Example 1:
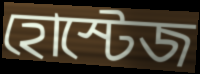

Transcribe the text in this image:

হোস্টেজ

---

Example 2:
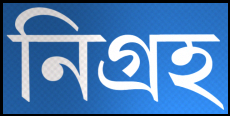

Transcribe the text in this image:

নিগ্রহ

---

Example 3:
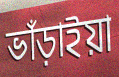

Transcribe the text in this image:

ভাঁড়াইয়া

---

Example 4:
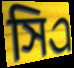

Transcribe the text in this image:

সিএ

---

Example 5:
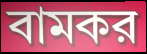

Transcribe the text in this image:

বামকর